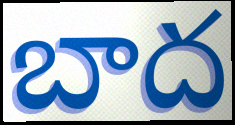
బాద